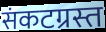
संकटग्रस्‍त